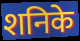
शनिके